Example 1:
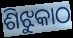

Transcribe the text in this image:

ଶିଝୁକାଠ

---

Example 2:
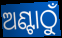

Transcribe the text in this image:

ଅଣ୍ଟାଠୁଁ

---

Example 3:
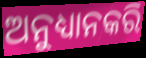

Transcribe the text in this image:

ଅନୁଧ୍ୟାନକରି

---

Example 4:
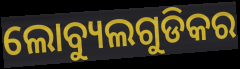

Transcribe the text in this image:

ଲୋବ୍ୟୁଲଗୁଡିକର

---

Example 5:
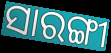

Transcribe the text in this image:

ସାରଙ୍ଗୀ